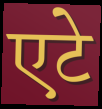
एटे